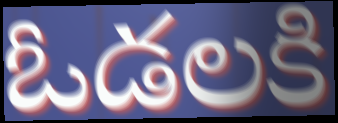
ఓడలకి